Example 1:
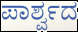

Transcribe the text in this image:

ಪಾರ್ಶ್ವದ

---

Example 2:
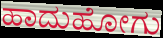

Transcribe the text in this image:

ಹಾದುಹೋಗು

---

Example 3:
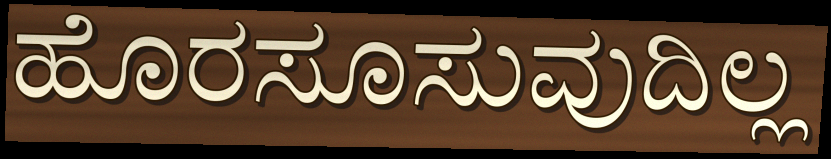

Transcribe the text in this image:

ಹೊರಸೂಸುವುದಿಲ್ಲ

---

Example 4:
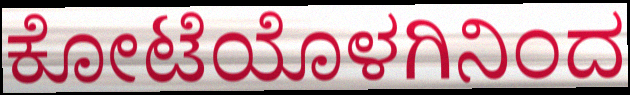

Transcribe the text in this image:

ಕೋಟೆಯೊಳಗಿನಿಂದ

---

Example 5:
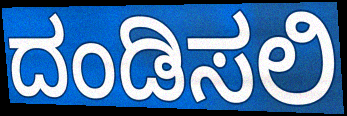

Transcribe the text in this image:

ದಂಡಿಸಲಿ